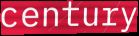
century